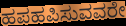
ಹಪಹಪಿಸುವವರೇ